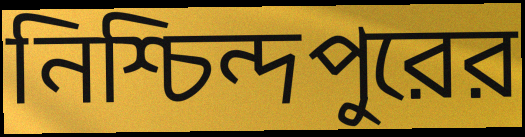
নিশ্চিন্দপুরের